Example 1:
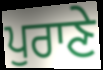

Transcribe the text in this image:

ਪੁਰਾਣੇ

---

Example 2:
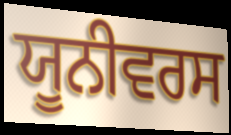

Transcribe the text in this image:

ਯੂਨੀਵਰਸ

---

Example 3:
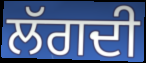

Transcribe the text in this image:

ਲੱਗਦੀ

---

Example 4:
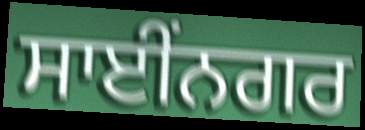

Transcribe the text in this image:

ਸਾਈਂਨਗਰ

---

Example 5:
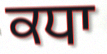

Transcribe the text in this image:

ਕਧਾ